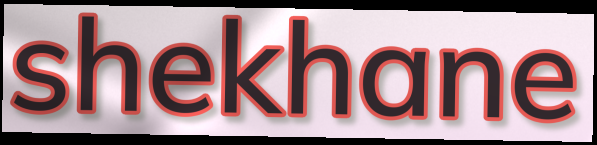
shekhane